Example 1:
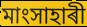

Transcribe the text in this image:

মাংসাহাৰী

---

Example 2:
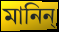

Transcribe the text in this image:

মানিন্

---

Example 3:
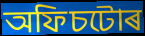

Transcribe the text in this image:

অফিচটোৰ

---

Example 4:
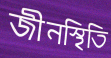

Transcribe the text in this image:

জীনস্থিতি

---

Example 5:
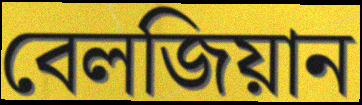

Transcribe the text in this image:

বেলজিয়ান